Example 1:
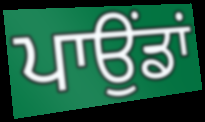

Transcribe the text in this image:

ਪਾਉਂਡਾਂ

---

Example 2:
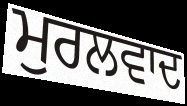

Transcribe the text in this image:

ਮੁਰਲਵਾਦ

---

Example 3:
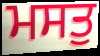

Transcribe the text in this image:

ਮਸਤੁ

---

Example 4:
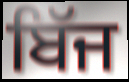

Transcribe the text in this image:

ਬਿੱਜ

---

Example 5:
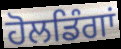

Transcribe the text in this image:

ਹੋਲਡਿੰਗਾਂ